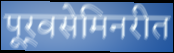
पूर्वसेमिनरीत